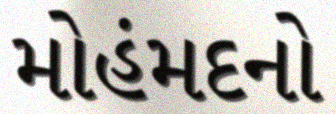
મોહંમદનો